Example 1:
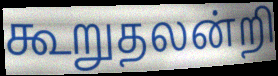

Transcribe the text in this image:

கூறுதலன்றி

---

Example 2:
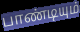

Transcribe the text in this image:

பாண்டியும்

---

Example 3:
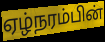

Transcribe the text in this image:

ஏழ்நரம்பின்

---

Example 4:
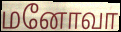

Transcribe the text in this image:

மனோவா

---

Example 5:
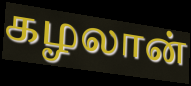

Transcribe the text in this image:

கழலான்